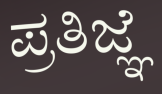
ಪ್ರತಿಜ್ಞೆ